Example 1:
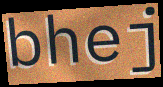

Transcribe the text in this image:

bhej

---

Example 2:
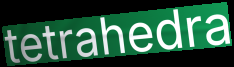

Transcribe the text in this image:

tetrahedra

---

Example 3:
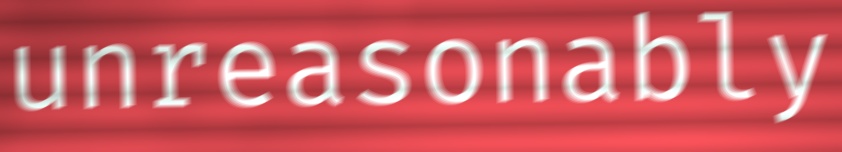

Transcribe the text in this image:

unreasonably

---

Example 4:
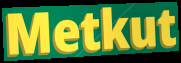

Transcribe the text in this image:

Metkut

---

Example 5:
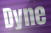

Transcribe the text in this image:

Dyne